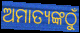
ଅମାତ୍ୟଙ୍କଠୁଁ